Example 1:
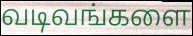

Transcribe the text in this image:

வடிவங்களை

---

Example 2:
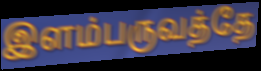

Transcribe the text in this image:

இளம்பருவத்தே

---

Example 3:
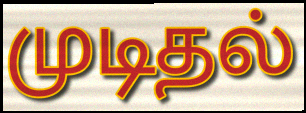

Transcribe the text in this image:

முடிதல்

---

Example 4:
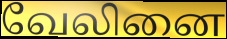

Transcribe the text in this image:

வேலினை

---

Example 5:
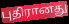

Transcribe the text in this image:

புதிரானது